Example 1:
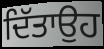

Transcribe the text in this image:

ਦਿੱਤਾਉਹ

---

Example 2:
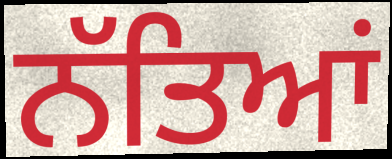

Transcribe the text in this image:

ਨੱਤਿਆਂ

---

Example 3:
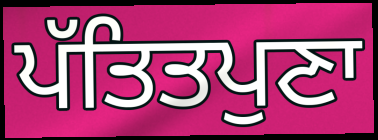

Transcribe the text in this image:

ਪੱਤਿਤਪੁਣਾ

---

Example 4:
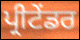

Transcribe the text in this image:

ਪ੍ਰੀਟੇਂਡਰ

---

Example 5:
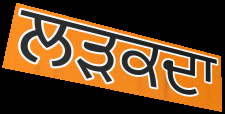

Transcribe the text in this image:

ਲੜਕਦਾ